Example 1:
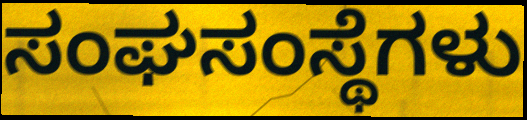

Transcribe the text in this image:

ಸಂಘಸಂಸ್ಥೆಗಳು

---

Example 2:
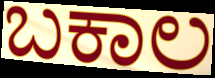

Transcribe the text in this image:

ಬಕಾಲ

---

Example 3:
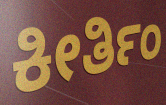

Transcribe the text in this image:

ಕೀರ್ತಿಂ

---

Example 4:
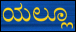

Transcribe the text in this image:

ಯಲ್ಲೂ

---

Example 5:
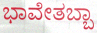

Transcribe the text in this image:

ಭಾವೇತಬ್ಬಾ